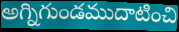
అగ్నిగుండముదాటించి